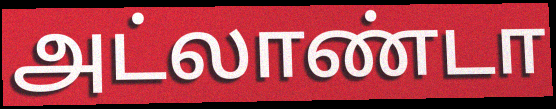
அட்லாண்டா